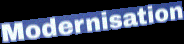
Modernisation